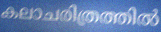
കലാചരിത്രത്തിൽ